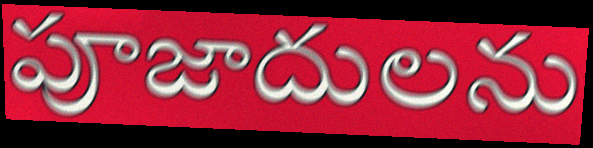
పూజాదులను